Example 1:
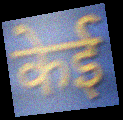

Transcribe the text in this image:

केई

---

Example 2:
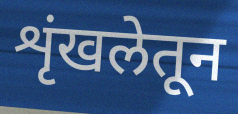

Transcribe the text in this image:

शृंखलेतून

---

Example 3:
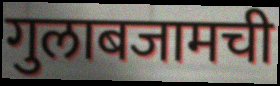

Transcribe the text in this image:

गुलाबजामची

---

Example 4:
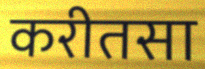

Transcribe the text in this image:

करीतसा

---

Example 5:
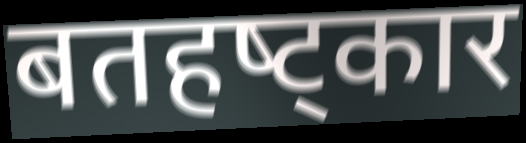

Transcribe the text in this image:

बतहष्ट्कार